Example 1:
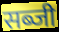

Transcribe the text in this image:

सब्ज़ी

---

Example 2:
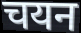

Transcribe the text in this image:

चयन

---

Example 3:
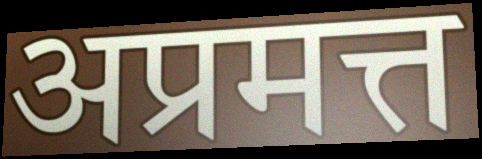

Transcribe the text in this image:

अप्रमत्त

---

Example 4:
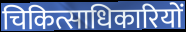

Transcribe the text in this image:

चिकित्साधिकारियों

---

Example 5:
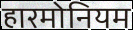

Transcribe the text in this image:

हारमोनियम